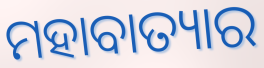
ମହାବାତ୍ୟାର